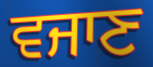
ਵਜਾਣ